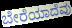
ಬೇರೆಯಾದೆವು